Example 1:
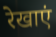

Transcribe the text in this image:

रेखाएं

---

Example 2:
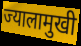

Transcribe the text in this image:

ज्यालामुखी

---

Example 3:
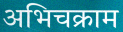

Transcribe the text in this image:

अभिचक्राम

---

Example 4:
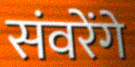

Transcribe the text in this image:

संवरेंगे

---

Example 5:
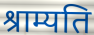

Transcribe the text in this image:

श्राम्यति